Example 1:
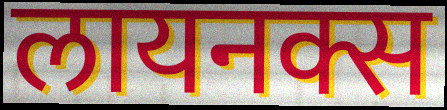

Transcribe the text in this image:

लायनक्स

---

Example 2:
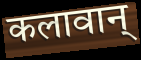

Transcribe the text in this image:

कलावान्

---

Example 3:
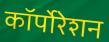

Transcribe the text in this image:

कॉर्पोरेशन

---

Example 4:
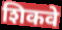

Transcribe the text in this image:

शिकवे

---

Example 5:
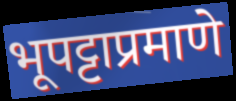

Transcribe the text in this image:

भूपट्टाप्रमाणे